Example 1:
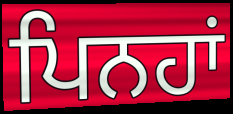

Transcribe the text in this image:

ਪਿਨਹਾਂ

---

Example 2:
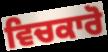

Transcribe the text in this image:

ਵਿਚਕਾਰੋ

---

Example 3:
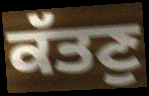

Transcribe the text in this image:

ਕੱਤਣੁ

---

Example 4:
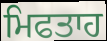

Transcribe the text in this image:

ਮਿਫਤਾਹ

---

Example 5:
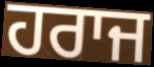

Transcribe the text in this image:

ਹਰਾਜ